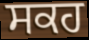
ਸਕਹ